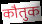
कौतुक